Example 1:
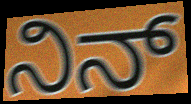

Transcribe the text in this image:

ನಿನ್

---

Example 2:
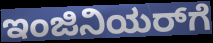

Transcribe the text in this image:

ಇಂಜಿನಿಯರ್‌ಗೆ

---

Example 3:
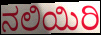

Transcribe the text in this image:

ನಲಿಯಿರಿ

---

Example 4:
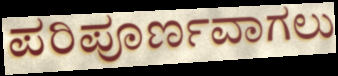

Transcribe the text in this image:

ಪರಿಪೂರ್ಣವಾಗಲು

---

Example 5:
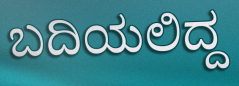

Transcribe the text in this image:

ಬದಿಯಲಿದ್ದ